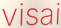
visai